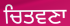
ਚਿਤਵਣਾ